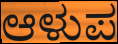
ಆಳುಪ